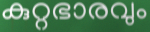
കുറ്റഭാരവും